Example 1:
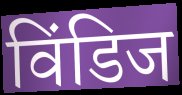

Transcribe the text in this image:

विंडिज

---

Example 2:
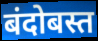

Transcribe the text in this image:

बंदोबस्त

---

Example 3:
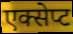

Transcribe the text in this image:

एक्सेप्ट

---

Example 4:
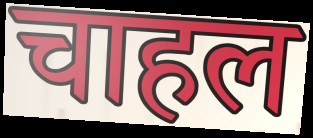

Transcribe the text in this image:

चाहल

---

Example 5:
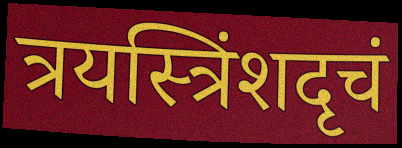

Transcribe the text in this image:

त्रयस्त्रिंशदृचं